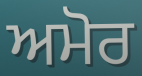
ਅਮੋਰ